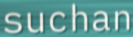
suchan